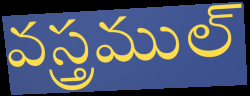
వస్త్రముల్